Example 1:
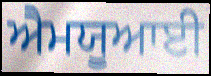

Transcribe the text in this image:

ਐਮਯੂਆਈ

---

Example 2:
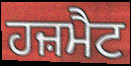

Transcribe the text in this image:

ਹਜ਼ਮੈਟ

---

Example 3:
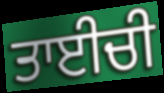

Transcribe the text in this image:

ਤਾਈਚੀ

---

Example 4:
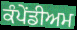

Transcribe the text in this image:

ਕੰਪੇਂਡੀਅਮ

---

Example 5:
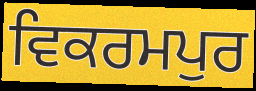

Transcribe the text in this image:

ਵਿਕਰਮਪੁਰ